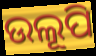
ଉଲୂପି